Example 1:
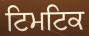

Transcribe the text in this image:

ਟਿਮਟਿਕ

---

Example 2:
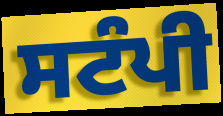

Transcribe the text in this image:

ਸਟੰਪੀ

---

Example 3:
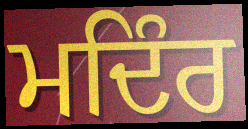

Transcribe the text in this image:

ਮਦਿੰਰ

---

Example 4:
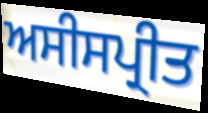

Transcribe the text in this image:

ਅਸੀਸਪ੍ਰੀਤ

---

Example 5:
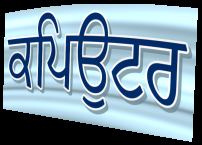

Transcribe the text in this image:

ਕਪਿਉਟਰ